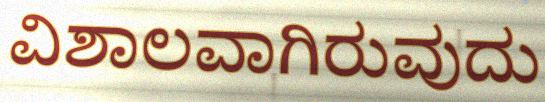
ವಿಶಾಲವಾಗಿರುವುದು